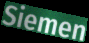
Siemen